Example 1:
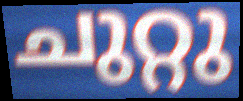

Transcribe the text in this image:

ചുറ്റു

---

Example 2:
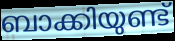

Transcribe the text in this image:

ബാക്കിയുണ്ട്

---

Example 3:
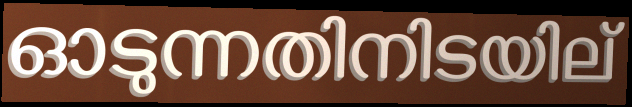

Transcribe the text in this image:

ഓടുന്നതിനിടയില്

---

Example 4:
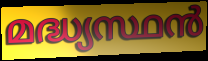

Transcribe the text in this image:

മദ്ധ്യസ്ഥൻ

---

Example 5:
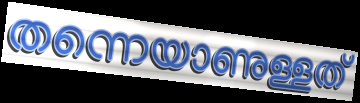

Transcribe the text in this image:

തന്നെയാണുള്ളത്